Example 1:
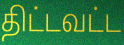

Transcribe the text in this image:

திட்டவட்ட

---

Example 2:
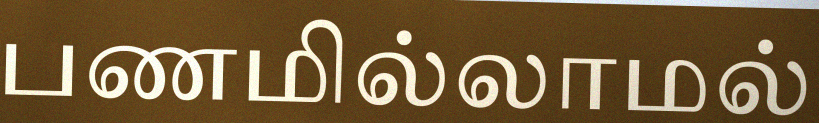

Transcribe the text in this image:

பணமில்லாமல்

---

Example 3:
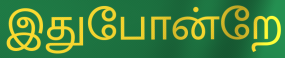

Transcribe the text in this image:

இதுபோன்றே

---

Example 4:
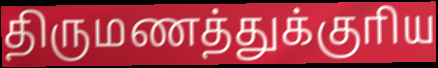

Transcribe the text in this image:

திருமணத்துக்குரிய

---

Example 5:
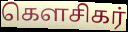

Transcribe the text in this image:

கௌசிகர்